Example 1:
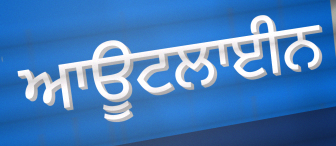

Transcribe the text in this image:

ਆਊਟਲਾਈਨ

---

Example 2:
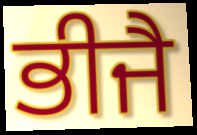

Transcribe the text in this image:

ਭੀਜੈ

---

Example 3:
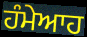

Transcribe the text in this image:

ਹੰਮੇਆਹ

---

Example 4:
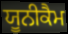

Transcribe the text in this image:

ਯੂਨੀਕੈਮ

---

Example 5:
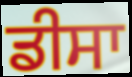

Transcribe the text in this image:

ਡੀਸਾ